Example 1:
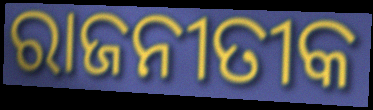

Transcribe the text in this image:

ରାଜନୀତୀକ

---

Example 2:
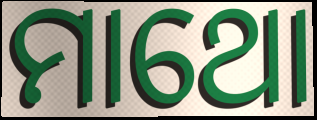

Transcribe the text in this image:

ମାଥୋ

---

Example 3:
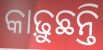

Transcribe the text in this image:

କାଢ଼ୁଛନ୍ତି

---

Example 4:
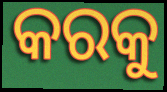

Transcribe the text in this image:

କରକୁ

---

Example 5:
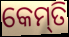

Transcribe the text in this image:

କେମ୍‍ତି